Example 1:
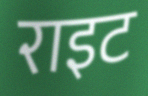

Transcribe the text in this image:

राइट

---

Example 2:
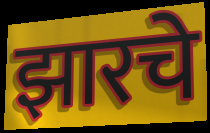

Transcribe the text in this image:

झारचे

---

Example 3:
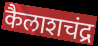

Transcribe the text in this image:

कैलाशचंद्र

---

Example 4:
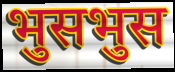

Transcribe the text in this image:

भुसभुस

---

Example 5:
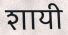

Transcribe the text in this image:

शायी